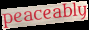
peaceably